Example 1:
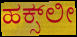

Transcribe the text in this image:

ಹಕ್ಸ್‌ಲೀ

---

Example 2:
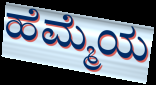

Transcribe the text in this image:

ಹೆಮ್ಮೆಯ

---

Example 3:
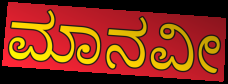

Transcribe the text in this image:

ಮಾನವೀ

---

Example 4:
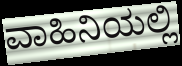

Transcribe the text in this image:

ವಾಹಿನಿಯಲ್ಲಿ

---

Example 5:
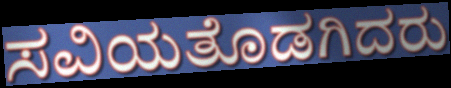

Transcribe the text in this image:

ಸವಿಯತೊಡಗಿದರು